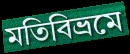
মতিবিভ্রমে